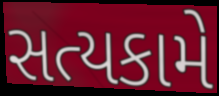
સત્યકામે